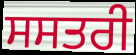
ਸਸਤਰੀ